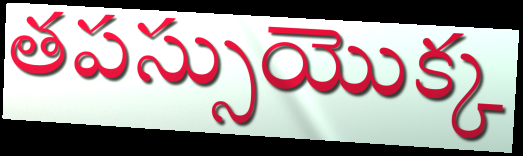
తపస్సుయొక్క